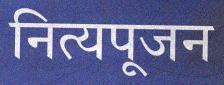
नित्यपूजन